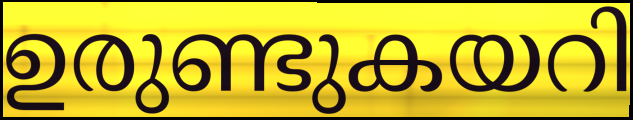
ഉരുണ്ടുകയറി